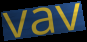
vav